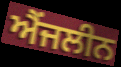
ਐਂਜਲੀਨ